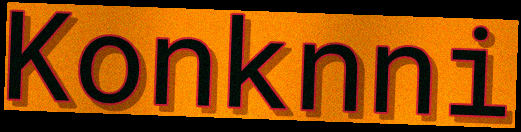
Konknni